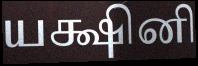
யக்ஷினி